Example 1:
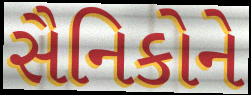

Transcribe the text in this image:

સૈનિકોને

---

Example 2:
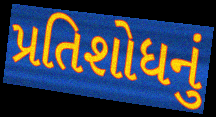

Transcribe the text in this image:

પ્રતિશોધનું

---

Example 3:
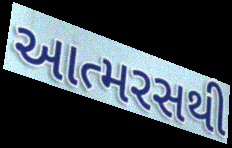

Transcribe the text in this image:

આત્મરસથી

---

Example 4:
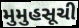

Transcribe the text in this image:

મુમુહસૂચી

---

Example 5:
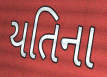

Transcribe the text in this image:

યતિના